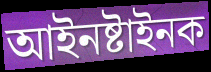
আইনষ্টাইনক